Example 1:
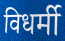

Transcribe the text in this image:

विधर्मी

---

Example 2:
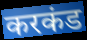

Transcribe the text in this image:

करकंड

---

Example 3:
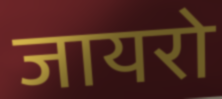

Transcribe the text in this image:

जायरो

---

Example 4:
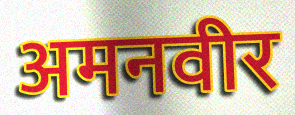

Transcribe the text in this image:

अमनवीर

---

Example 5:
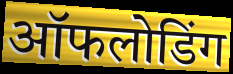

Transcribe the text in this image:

ऑफलोडिंग